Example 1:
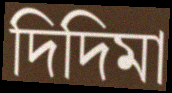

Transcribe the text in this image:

দিদিমা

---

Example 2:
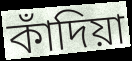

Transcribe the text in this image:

কাঁদিয়া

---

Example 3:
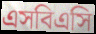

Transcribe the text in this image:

এসবিএসি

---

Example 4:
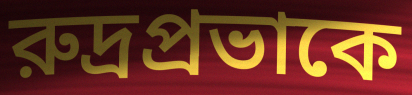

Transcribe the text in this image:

রুদ্রপ্রভাকে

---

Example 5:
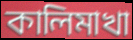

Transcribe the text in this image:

কালিমাখা